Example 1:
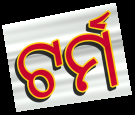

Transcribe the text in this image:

ଟର୍ମ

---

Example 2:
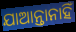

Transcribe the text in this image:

ଯାଆନ୍ତାନାହିଁ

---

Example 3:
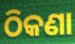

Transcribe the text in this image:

ଠିକଣା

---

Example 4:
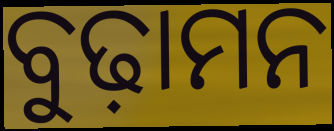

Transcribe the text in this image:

ବୁଢ଼ାମନ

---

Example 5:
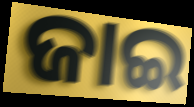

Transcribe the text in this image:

ଜାଇ